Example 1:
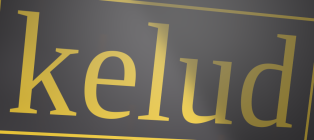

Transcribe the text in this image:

kelud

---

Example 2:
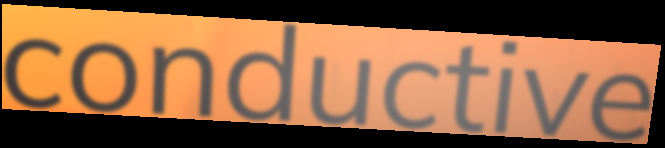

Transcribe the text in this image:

conductive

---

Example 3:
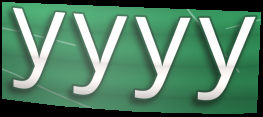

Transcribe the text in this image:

yyyy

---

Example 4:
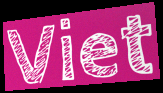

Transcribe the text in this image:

Viet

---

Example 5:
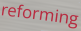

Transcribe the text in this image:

reforming